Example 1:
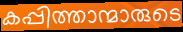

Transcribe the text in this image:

കപ്പിത്താന്മാരുടെ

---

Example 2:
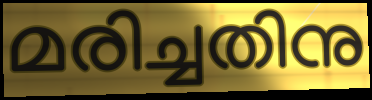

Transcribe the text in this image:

മരിച്ചതിനു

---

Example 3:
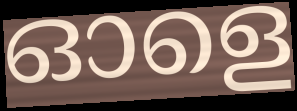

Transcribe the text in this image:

ഓളെ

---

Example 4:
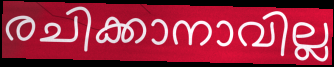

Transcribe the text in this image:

രചിക്കാനാവില്ല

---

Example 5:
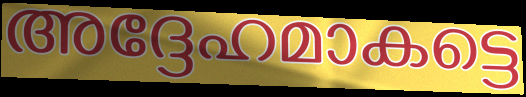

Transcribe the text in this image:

അദ്ദേഹമാകട്ടെ